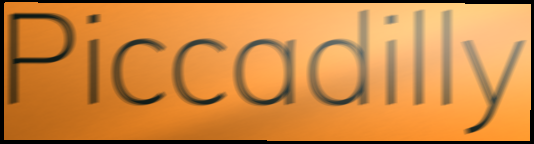
Piccadilly